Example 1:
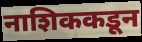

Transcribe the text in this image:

नाशिककडून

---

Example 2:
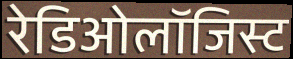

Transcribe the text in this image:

रेडिओलॉजिस्ट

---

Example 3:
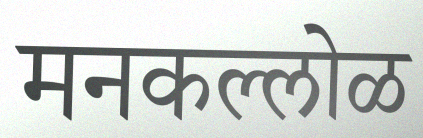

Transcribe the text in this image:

मनकल्लोळ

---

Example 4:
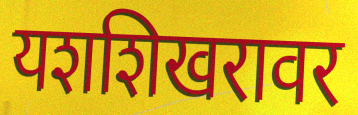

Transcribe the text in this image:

यशशिखरावर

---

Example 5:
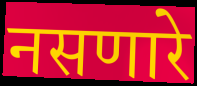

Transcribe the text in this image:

नसणारे